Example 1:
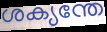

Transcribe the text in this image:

ശക്യന്തേ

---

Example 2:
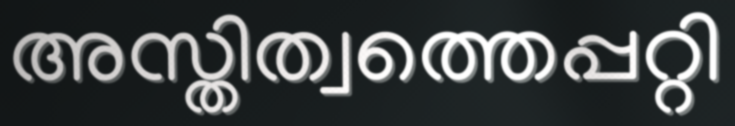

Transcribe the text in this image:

അസ്തിത്വത്തെപ്പറ്റി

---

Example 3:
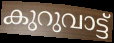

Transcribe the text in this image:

കുറുവാട്ട്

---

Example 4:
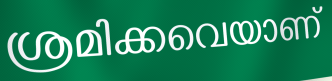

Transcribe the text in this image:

ശ്രമിക്കവെയാണ്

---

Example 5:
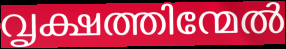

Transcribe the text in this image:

വൃക്ഷത്തിന്മേൽ